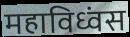
महाविध्वंस